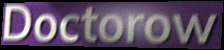
Doctorow